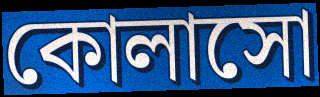
কোলাসো